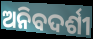
ଅନିବଦର୍ଶୀ